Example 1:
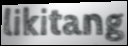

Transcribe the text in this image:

likitang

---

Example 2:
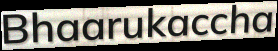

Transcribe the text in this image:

Bhaarukaccha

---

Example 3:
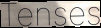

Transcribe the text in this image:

Tenses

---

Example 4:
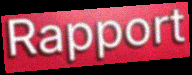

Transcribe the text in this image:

Rapport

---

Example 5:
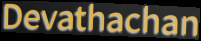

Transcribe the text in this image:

Devathachan